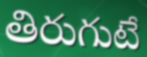
తిరుగుటే